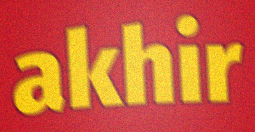
akhir